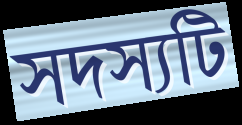
সদস্যটি